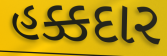
હક્કદાર